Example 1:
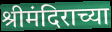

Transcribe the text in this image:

श्रीमंदिराच्या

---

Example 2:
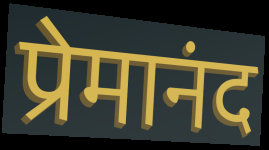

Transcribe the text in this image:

प्रेमानंद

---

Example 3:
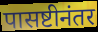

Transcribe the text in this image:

पासष्टीनंतर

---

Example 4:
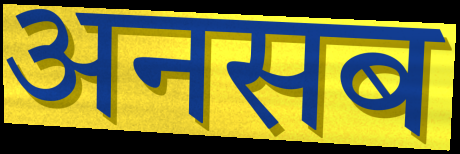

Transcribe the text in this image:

अनसब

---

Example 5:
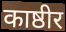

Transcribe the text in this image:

काष्ठीर